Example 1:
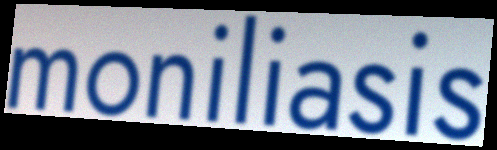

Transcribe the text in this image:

moniliasis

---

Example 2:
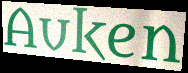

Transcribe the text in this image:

Auken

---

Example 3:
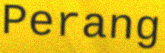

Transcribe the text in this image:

Perang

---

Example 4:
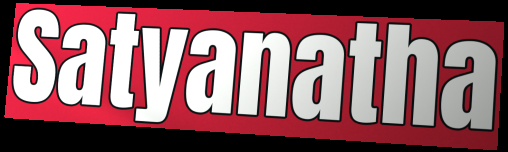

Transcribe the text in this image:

Satyanatha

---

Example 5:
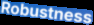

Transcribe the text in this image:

Robustness